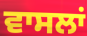
ਵਾਸਲਾਂ